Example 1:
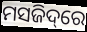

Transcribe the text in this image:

ମସଜିଦ୍‌ରେ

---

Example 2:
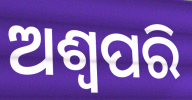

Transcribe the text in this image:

ଅଶ୍ୱପରି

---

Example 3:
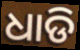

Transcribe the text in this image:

ଧାଡି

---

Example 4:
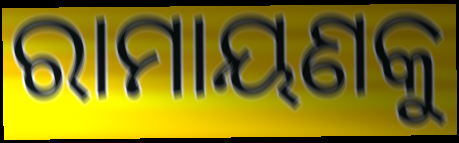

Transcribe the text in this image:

ରାମାୟଣକୁ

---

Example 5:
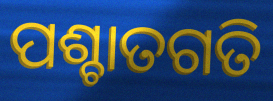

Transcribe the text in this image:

ପଶ୍ଚାତଗତି